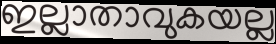
ഇല്ലാതാവുകയല്ല